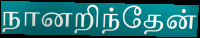
நானறிந்தேன்